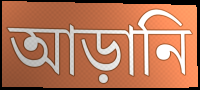
আড়ানি